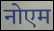
नोएम